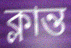
ক্লান্ত